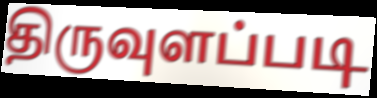
திருவுளப்படி